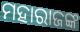
ମହାରାଜଙ୍କ